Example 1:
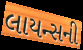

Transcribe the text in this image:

લાયન્સની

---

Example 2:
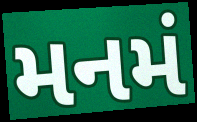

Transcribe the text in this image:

મનમં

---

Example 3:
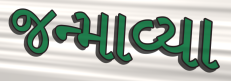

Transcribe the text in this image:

જન્માવ્યા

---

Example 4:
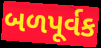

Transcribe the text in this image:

બળપૂર્વક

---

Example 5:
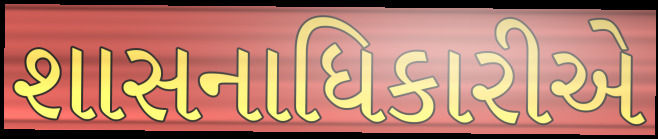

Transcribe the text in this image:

શાસનાધિકારીએ